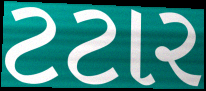
ટટાર